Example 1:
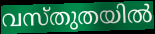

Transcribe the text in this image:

വസ്തുതയിൽ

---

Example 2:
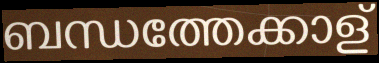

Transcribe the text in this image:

ബന്ധത്തേക്കാള്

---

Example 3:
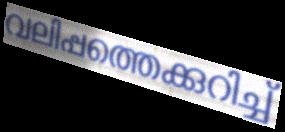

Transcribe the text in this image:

വലിപ്പത്തെക്കുറിച്ച്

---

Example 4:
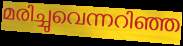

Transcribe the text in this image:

മരിച്ചുവെന്നറിഞ്ഞ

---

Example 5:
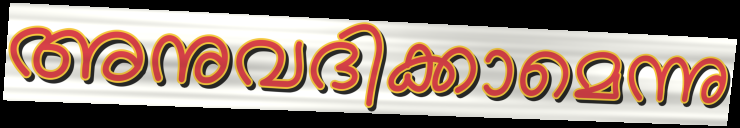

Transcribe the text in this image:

അനുവദിക്കാമെന്നു